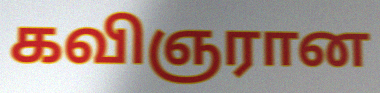
கவிஞரான